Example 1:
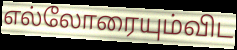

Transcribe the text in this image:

எல்லோரையும்விட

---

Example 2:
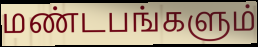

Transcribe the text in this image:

மண்டபங்களும்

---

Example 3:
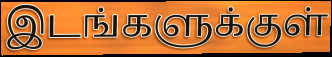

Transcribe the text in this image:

இடங்களுக்குள்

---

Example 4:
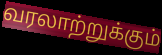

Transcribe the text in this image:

வரலாற்றுக்கும்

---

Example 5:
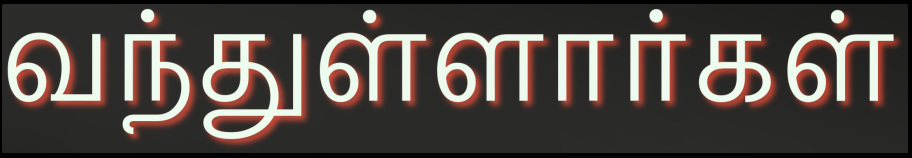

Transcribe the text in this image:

வந்துள்ளார்கள்